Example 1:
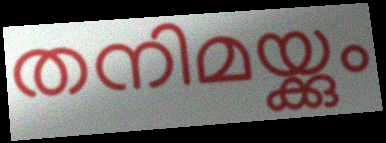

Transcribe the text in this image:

തനിമയ്ക്കും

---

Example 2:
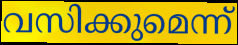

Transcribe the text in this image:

വസിക്കുമെന്ന്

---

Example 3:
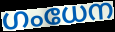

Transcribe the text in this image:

ഗംധേന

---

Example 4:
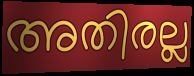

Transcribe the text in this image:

അതിരല്ല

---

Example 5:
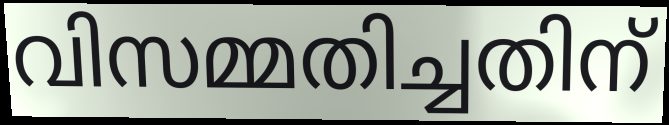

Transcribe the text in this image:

വിസമ്മതിച്ചതിന്